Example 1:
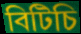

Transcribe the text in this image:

বিটিচি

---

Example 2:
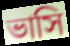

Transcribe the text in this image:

ভাসি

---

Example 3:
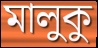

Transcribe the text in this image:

মালুকু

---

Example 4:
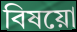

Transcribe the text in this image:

বিষয়ো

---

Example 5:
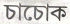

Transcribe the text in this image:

চাচোক